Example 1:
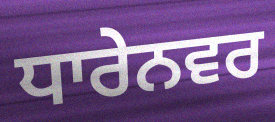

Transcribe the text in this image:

ਧਾਰੇਨਵਰ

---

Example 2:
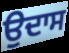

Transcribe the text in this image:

ਉਦਾਸ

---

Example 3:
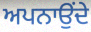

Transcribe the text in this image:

ਅਪਨਾਉਂਦੇ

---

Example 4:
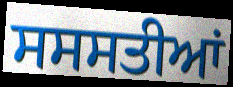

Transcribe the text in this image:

ਸਸਸਤੀਆਂ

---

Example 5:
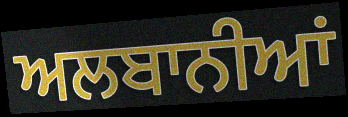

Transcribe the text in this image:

ਅਲਬਾਨੀਆਂ